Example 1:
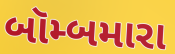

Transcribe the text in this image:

બૉમ્બમારા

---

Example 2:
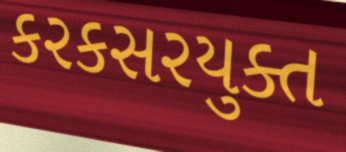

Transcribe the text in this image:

કરકસરયુક્ત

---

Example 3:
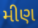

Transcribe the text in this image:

મીણ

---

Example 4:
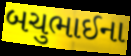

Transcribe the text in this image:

બચુભાઈના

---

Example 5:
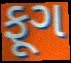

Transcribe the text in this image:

ફૂગ